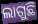
ଲାଗୁଛି